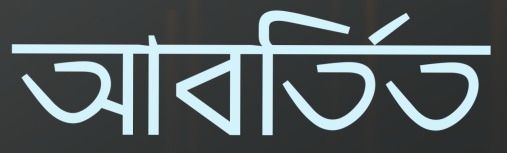
আবর্তিত